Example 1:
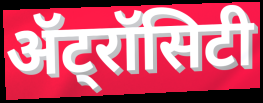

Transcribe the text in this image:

ॲट्रॉसिटी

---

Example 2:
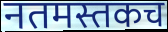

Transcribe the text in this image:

नतमस्तकच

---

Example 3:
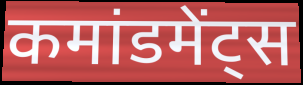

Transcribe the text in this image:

कमांडमेंट्स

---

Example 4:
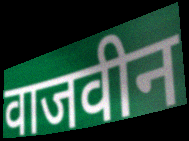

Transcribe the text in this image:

वाजवीन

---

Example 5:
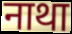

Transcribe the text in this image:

नाथा